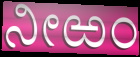
ನೀಱಂ